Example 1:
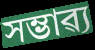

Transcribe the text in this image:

সম্ভাৱ্য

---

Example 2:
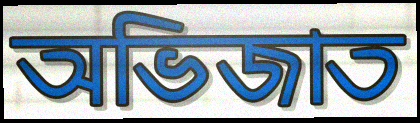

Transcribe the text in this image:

অভিজাত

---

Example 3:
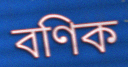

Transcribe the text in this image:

বণিক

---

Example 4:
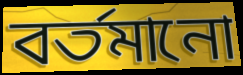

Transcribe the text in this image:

বৰ্তমানো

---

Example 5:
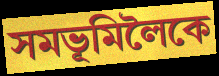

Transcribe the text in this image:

সমভূমিলৈকে